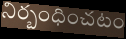
నిర్బంధించటం